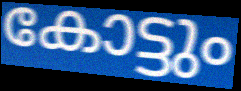
കോട്ടും